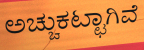
ಅಚ್ಚುಕಟ್ಟಾಗಿವೆ